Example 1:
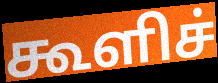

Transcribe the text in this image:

கூளிச்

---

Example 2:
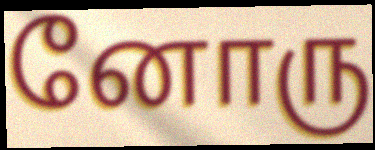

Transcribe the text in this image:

னோரு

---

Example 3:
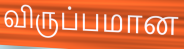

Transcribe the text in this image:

விருப்பமான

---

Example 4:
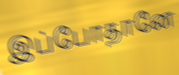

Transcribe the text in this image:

இப்போதானே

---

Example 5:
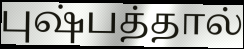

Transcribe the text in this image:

புஷ்பத்தால்